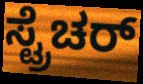
ಸ್ಟ್ರೆಚರ್